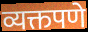
व्यक्तपणे